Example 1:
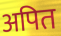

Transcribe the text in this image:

अपित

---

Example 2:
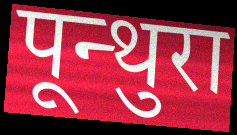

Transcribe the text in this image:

पून्थुरा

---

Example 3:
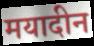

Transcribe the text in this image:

मयादीन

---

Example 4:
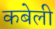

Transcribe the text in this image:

कबेली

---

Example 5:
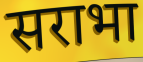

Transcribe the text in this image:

सराभा